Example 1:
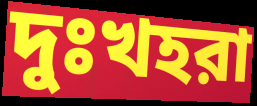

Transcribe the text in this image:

দুঃখহরা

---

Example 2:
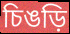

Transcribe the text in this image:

চিঙড়ি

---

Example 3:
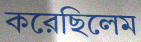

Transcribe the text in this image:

করেছিলেম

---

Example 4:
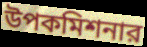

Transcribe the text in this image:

উপকমিশনার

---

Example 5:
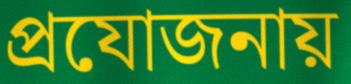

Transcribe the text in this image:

প্রযোজনায়